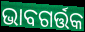
ଭାବଗର୍ତ୍ତକ